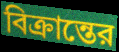
বিক্রান্তের